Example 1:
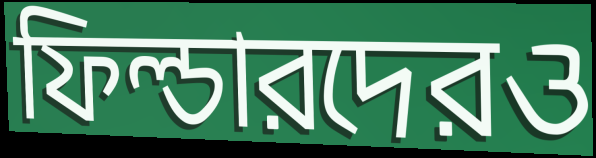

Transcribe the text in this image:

ফিল্ডারদেরও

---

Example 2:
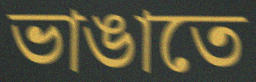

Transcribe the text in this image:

ভাঙাতে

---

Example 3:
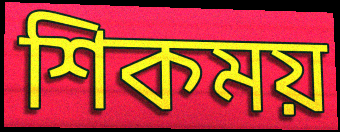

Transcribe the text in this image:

শিকময়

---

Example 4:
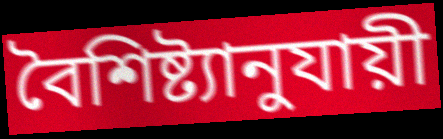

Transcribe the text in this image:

বৈশিষ্ট্যানুযায়ী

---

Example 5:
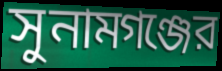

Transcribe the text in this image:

সুনামগঞ্জের